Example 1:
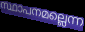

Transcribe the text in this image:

സ്ഥാപനമല്ലെന്ന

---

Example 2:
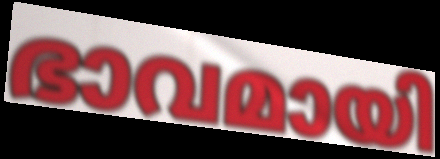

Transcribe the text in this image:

ഭാവമായി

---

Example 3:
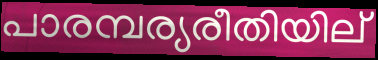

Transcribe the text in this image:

പാരമ്പര്യരീതിയില്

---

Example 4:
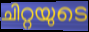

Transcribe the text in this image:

ചിറ്റയുടെ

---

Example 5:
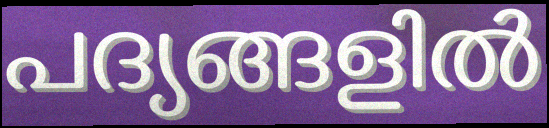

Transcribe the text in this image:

പദ്യങ്ങളിൽ